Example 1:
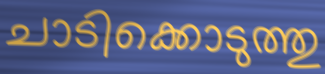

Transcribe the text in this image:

ചാടിക്കൊടുത്തു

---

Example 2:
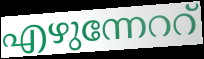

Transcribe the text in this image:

എഴുന്നേററ്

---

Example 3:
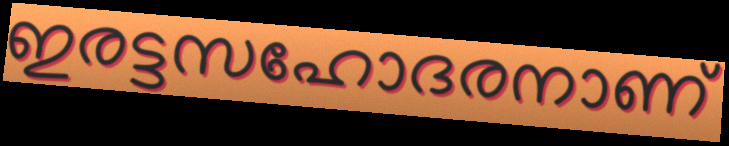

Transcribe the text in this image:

ഇരട്ടസഹോദരനാണ്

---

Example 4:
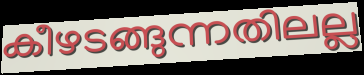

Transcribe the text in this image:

കീഴടങ്ങുന്നതിലല്ല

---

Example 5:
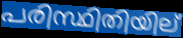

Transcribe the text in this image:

പരിസ്ഥിതിയില്